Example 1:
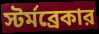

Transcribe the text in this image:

স্টর্মব্রেকার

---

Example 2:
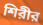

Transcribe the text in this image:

শিরীর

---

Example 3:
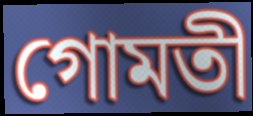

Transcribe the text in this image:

গোমতী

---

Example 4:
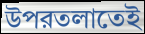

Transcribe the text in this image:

উপরতলাতেই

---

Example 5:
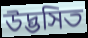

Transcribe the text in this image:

উদ্ভসিত